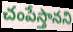
చంపేస్తానని